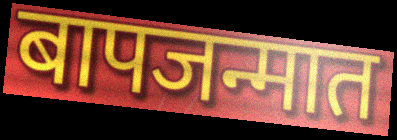
बापजन्मात